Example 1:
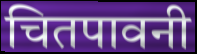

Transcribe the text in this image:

चितपावनी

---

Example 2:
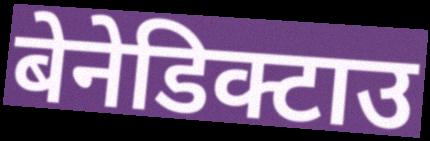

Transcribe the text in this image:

बेनेडिक्टाउ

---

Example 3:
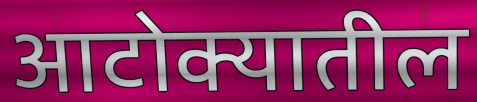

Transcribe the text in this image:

आटोक्यातील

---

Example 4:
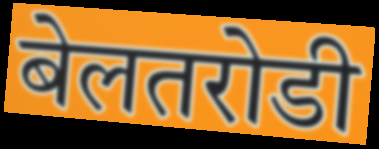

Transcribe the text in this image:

बेलतरोडी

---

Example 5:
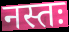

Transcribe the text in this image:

नस्तः